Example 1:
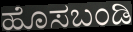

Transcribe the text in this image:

ಹೊಸಬಂಡಿ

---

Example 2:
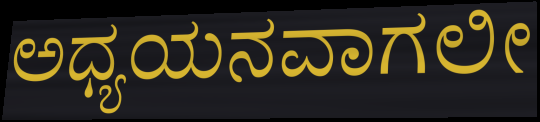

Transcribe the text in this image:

ಅಧ್ಯಯನವಾಗಲೀ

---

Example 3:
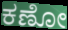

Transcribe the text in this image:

ಕಣೋ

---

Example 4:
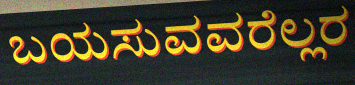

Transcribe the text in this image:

ಬಯಸುವವರೆಲ್ಲರ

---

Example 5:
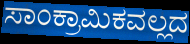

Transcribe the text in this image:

ಸಾಂಕ್ರಾಮಿಕವಲ್ಲದ